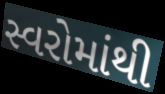
સ્વરોમાંથી